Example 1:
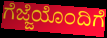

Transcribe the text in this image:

ಗೆಜ್ಜೆಯೊಂದಿಗೆ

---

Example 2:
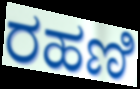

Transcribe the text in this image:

ರಹಣಿ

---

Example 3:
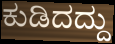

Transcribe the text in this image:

ಕುಡಿದದ್ದು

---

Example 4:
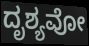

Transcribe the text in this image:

ದೃಶ್ಯವೋ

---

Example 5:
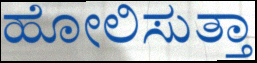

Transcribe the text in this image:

ಹೋಲಿಸುತ್ತಾ